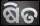
ଷିତ